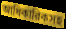
আধিকারিকসহ